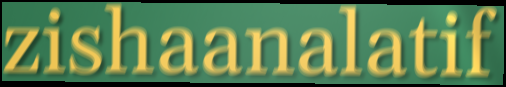
zishaanalatif